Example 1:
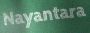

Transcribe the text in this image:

Nayantara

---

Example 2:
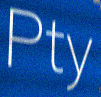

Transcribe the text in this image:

Pty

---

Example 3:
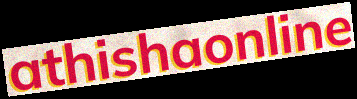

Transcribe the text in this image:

athishaonline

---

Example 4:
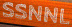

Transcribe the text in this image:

SSNNL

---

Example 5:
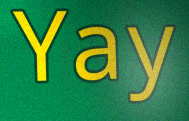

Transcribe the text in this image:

Yay